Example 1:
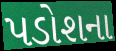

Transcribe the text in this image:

પડોશના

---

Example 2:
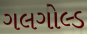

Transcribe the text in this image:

ગલગોલ્ડ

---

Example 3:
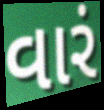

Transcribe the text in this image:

વારં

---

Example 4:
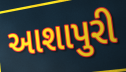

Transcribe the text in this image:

આશાપુરી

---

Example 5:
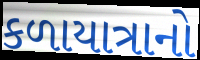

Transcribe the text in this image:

કળાયાત્રાનો